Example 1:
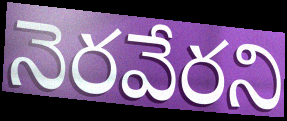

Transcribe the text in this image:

నెరవేరని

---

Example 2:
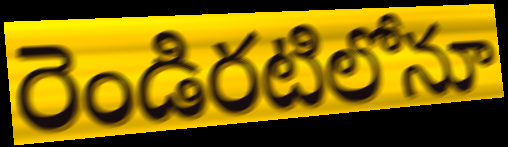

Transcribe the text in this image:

రెండిరటిలోనూ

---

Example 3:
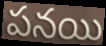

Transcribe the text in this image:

పనయి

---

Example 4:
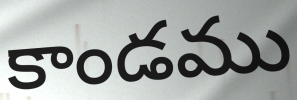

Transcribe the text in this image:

కాండము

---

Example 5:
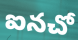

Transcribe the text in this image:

ఐనచో